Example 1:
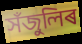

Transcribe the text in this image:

সঁজুলিৰ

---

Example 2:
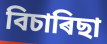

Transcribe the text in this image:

বিচাৰিছা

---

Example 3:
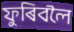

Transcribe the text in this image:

ফুৰিবলৈ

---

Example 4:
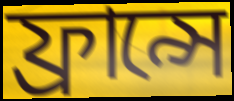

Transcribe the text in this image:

ফ্ৰান্সে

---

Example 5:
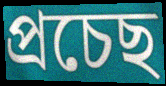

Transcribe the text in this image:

প্ৰচেছ